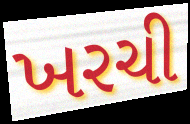
ખરચી